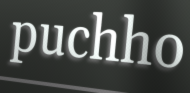
puchho